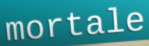
mortale